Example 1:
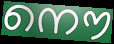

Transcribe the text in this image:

നൌ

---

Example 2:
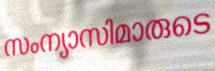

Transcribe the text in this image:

സംന്യാസിമാരുടെ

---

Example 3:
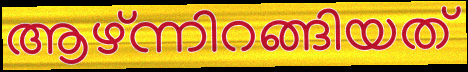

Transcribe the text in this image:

ആഴ്ന്നിറങ്ങിയത്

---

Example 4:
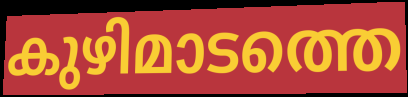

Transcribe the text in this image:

കുഴിമാടത്തെ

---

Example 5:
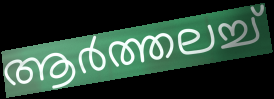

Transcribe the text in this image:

ആർത്തലച്ച്